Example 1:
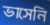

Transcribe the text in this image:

ভাসেনি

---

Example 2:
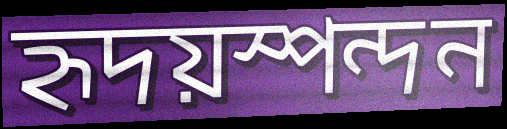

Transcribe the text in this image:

হৃদয়স্পন্দন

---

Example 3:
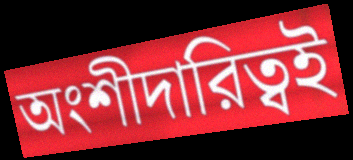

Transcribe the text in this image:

অংশীদারিত্বই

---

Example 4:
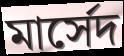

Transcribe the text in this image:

মার্সেদ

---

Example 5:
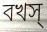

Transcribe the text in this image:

বখস্